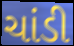
ચાંડી